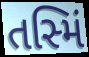
તસ્મિં